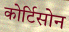
कोर्टिसोन